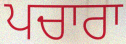
ਪਚਾਰਾ